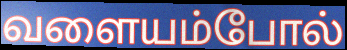
வளையம்போல்